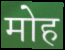
मोह